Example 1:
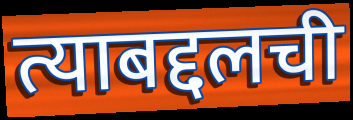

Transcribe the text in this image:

त्याबद्दलची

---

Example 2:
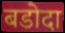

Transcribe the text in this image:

बडोदा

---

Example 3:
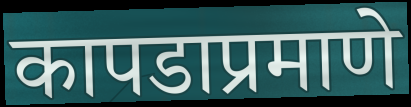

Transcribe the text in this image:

कापडाप्रमाणे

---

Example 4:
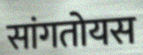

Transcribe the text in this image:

सांगतोयस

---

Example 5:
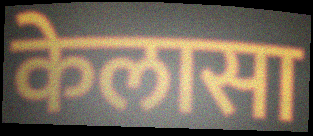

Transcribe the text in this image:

केलासा